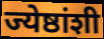
ज्येष्ठांशी